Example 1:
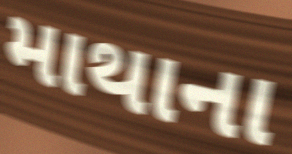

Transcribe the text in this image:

માથાના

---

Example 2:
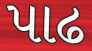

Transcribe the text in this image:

પાઢ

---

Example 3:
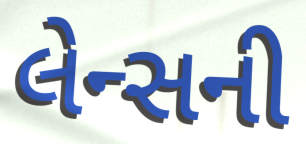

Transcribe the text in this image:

લેન્સની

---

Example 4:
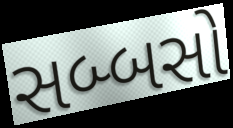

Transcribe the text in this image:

સબ્બસો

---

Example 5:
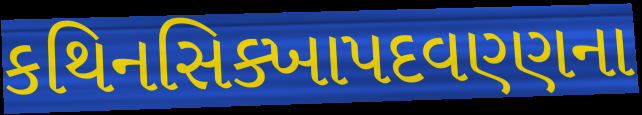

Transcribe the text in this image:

કથિનસિક્ખાપદવણ્ણના